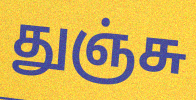
துஞ்சு